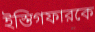
ইস্তিগফারকে